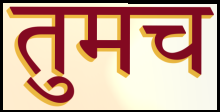
तुमच